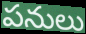
పనులు